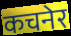
कचनेर